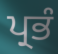
ਪ੍ਰਭੰ